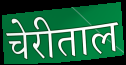
चेरीताल